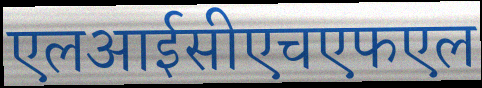
एलआईसीएचएफएल